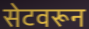
सेटवरून